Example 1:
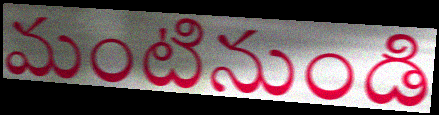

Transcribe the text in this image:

మంటినుండి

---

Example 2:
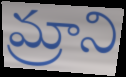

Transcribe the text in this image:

మ్రాని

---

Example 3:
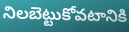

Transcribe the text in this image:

నిలబెట్టుకోవటానికి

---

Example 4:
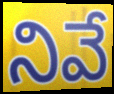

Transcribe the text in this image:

నివే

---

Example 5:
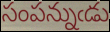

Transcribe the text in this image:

సంపన్నుఁడు